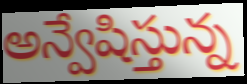
అన్వేషిస్తున్న